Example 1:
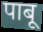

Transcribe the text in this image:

पाबू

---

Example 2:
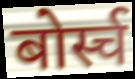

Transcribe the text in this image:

बोर्स्च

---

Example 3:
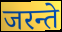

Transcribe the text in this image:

जरन्ते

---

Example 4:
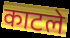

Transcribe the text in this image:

काटले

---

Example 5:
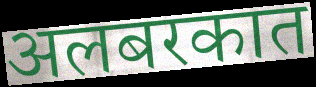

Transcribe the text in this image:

अलबरकात